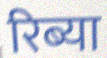
रिब्या